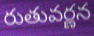
రుతువర్ణన